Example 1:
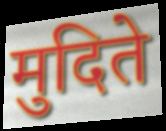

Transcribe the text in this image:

मुदिते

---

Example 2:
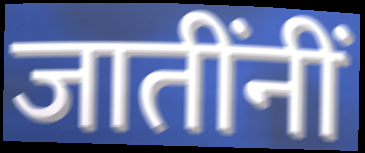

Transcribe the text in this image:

जातींनीं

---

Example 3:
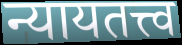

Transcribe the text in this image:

न्यायतत्त्व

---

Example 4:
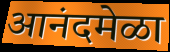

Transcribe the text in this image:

आनंदमेळा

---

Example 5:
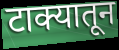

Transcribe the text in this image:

टाक्यातून